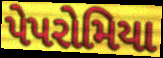
પેપરોમિયા